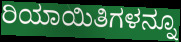
ರಿಯಾಯಿತಿಗಳನ್ನೂ